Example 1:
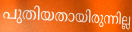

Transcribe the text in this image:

പുതിയതായിരുന്നില്ല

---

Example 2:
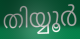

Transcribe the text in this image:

തിയ്യൂർ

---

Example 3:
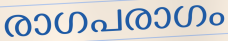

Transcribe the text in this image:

രാഗപരാഗം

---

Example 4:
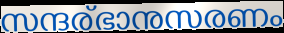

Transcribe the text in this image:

സന്ദര്ഭാനുസരണം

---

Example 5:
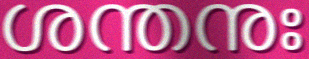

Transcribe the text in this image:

ശന്തനുഃ